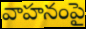
వాహనంపై